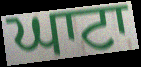
ਘਾਟਾ